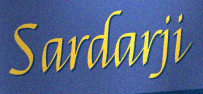
Sardarji